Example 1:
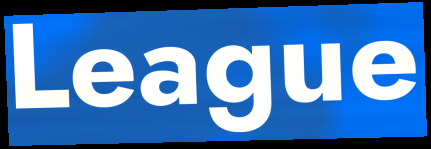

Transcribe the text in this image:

League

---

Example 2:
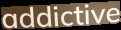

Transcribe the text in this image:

addictive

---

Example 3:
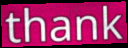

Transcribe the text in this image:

thank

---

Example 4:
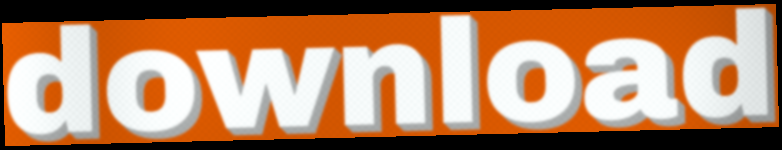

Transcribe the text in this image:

download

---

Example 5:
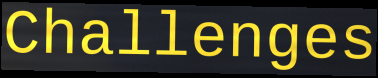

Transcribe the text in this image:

Challenges